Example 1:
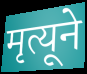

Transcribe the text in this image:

मृत्यूने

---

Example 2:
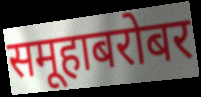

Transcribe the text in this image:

समूहाबरोबर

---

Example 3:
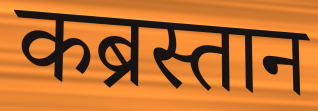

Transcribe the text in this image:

कब्रस्तान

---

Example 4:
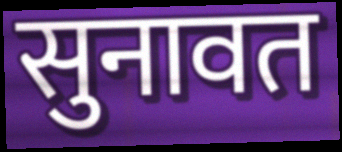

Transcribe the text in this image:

सुनावत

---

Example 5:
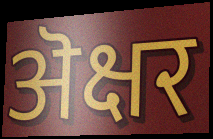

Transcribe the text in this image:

ऄक्षर